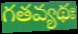
గతవ్యథః